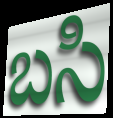
బసి